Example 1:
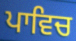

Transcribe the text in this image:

ਪਾਵਿਚ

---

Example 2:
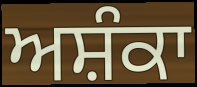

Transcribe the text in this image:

ਅਸ਼ੰਕਾ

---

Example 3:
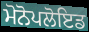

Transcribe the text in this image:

ਮੋਨੋਪਲੋਇਡ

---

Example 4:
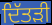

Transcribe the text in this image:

ਦਿੱਤੜੀ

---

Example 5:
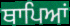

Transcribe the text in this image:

ਥਾਪਿਆਂ